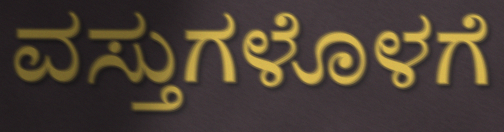
ವಸ್ತುಗಳೊಳಗೆ